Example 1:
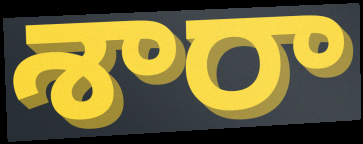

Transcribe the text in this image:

శారా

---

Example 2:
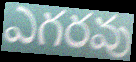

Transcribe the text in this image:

ఎగరవు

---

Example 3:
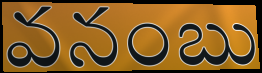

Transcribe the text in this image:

వనంబు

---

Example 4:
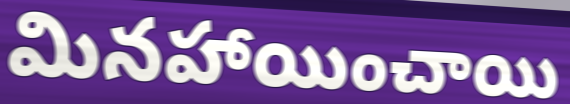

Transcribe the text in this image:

మినహాయించాయి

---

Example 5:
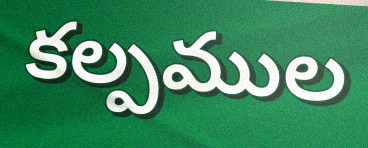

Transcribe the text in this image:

కల్పముల